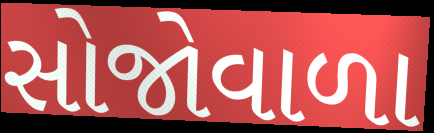
સોજોવાળા